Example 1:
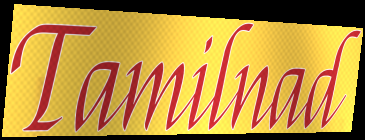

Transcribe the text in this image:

Tamilnad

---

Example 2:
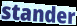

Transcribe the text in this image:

stander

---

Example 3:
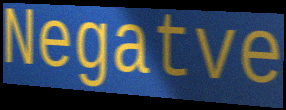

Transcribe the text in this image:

Negatve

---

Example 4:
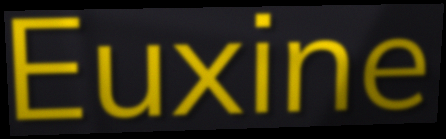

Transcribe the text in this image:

Euxine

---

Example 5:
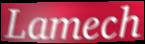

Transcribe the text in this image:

Lamech